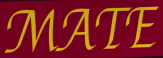
MATE